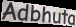
Adbhuta